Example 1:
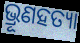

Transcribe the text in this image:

ଭ୍ରୂଣହତ୍ୟା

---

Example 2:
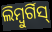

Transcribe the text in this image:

ଲିମ୍ବୁର୍ଗିସ୍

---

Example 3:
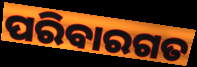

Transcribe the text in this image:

ପରିବାରଗତ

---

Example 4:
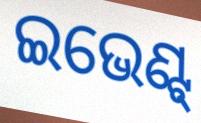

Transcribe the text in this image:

ଇଭେଣ୍ଟ୍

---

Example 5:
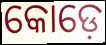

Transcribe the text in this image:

କୋଡ଼େ